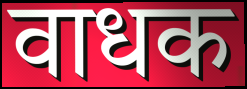
वाधक